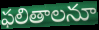
ఫలితాలనూ